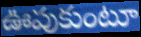
ఊపుకుంటూ